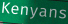
Kenyans